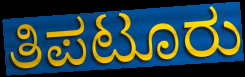
ತಿಪಟೂರು